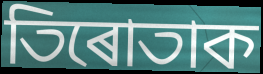
তিৰোতাক